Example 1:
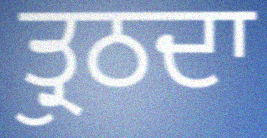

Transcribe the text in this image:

ਤ੍ਰੁਠਦਾ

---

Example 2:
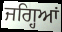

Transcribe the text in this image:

ਜਗ੍ਹਿਆਂ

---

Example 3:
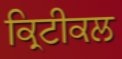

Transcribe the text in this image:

ਕ੍ਰਿਟੀਕਲ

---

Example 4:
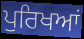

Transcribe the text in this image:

ਪੁਰਿਖਆਂ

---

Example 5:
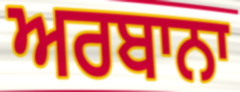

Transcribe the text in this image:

ਅਰਬਾਨਾ